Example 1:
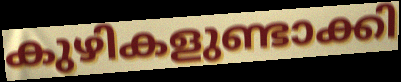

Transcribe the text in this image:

കുഴികളുണ്ടാക്കി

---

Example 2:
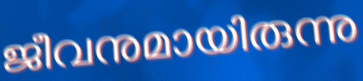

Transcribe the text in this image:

ജീവനുമായിരുന്നു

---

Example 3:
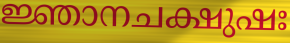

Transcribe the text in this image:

ജ്ഞാനചക്ഷുഷഃ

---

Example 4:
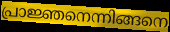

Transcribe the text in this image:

പ്രാജ്ഞനെന്നിങ്ങനെ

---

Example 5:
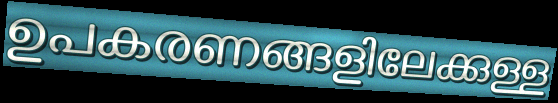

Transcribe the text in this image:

ഉപകരണങ്ങളിലേക്കുള്ള